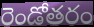
రెండోతరం